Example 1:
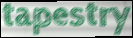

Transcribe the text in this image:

tapestry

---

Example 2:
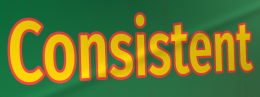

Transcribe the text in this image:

Consistent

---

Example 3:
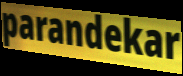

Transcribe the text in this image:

parandekar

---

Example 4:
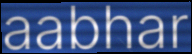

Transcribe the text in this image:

aabhar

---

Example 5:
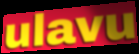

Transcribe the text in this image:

ulavu